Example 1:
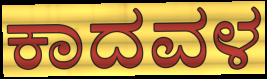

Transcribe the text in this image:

ಕಾದವಳ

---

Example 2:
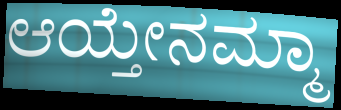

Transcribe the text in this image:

ಆಯ್ತೇನಮ್ಮಾ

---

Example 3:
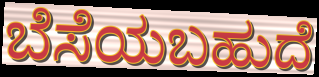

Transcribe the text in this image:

ಬೆಸೆಯಬಹುದೆ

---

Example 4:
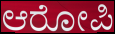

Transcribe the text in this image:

ಆರೋಪಿ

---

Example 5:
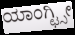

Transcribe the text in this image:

ಯಾಂಗ್ಟ್ಸೀ